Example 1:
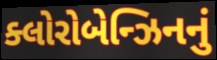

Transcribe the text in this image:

ક્લોરોબેન્ઝિનનું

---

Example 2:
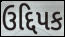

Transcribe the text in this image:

ઉદ્દિપક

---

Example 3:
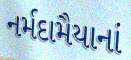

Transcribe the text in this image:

નર્મદામૈયાનાં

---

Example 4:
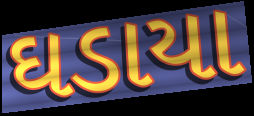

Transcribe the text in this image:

ઘડાયા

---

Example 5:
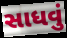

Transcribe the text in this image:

સાધવું